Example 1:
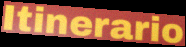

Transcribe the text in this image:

Itinerario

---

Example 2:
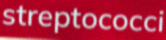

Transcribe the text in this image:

streptococci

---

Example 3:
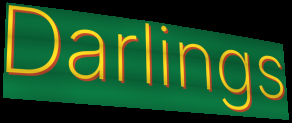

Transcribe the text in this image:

Darlings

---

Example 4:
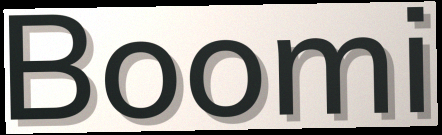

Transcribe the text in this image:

Boomi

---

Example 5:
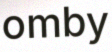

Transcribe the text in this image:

omby